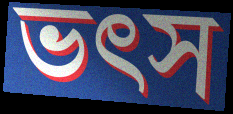
ভৎস